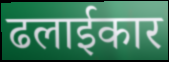
ढलाईकार